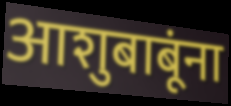
आशुबाबूंना